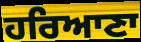
ਹਰਿਆਣਾ